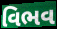
વિભવ